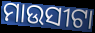
ମାଉସୀଟା